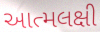
આત્મલક્ષી